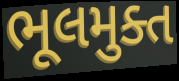
ભૂલમુક્ત